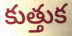
కుత్తుక